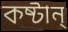
কষ্টান্